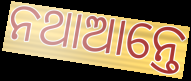
ନଥାଆନ୍ତେ